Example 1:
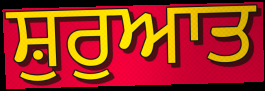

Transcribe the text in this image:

ਸ਼ੁਰੁਆਤ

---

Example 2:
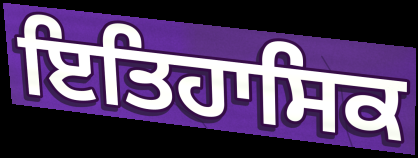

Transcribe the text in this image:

ਇਤਿਹਾਸਿਕ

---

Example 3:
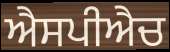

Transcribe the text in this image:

ਐਸਪੀਐਚ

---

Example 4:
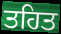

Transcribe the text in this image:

ਤਹਿਤ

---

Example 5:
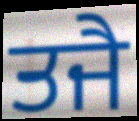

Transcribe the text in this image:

ਤਜੈ